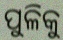
ପୁଳିକୁ